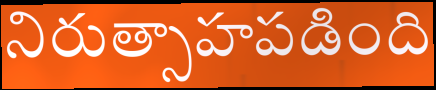
నిరుత్సాహపడింది